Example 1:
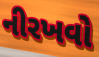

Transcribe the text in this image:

નીરખવો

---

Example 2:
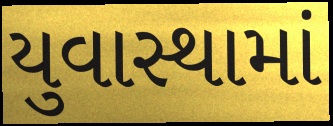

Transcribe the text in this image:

યુવાસ્થામાં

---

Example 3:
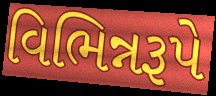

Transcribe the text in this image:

વિભિન્નરૂપે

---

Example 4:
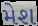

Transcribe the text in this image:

મેશ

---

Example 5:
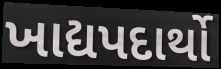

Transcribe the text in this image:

ખાદ્યપદાર્થો